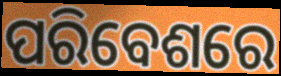
ପରିବେଶରେ